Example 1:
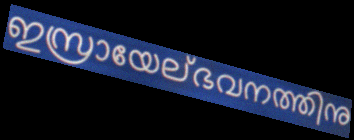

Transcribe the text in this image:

ഇസ്രായേല്ഭവനത്തിനു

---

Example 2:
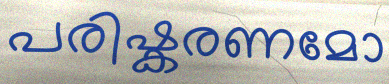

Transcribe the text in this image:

പരിഷ്കരണമോ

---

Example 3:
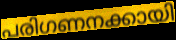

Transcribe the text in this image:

പരിഗണനക്കായി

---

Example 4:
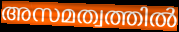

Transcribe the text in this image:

അസമത്വത്തിൽ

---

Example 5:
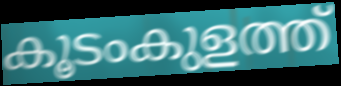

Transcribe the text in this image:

കൂടംകുളത്ത്